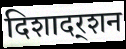
दिशादर्शन